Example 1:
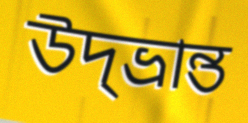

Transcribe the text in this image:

উদ্‌ভ্রান্ত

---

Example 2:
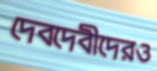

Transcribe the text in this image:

দেবদেবীদেরও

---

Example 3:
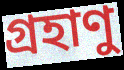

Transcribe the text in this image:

গ্রহাণু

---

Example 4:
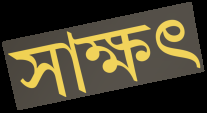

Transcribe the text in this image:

সাক্ষৎ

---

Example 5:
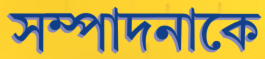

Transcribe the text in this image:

সম্পাদনাকে